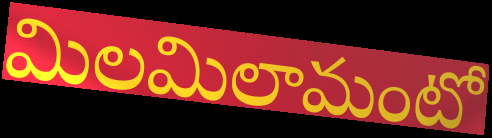
మిలమిలామంటో